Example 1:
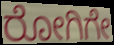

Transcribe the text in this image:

ರೋಗಿಗೇ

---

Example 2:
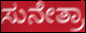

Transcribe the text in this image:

ಸುನೇತ್ರಾ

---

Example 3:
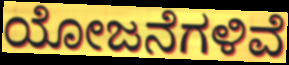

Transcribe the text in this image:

ಯೋಜನೆಗಳಿವೆ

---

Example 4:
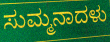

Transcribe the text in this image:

ಸುಮ್ಮನಾದಳು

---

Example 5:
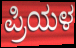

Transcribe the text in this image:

ಪ್ರಿಯಳ